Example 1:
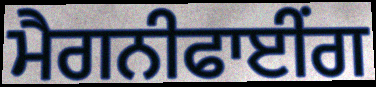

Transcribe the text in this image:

ਮੈਗਨੀਫਾਈਂਗ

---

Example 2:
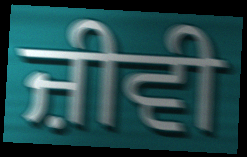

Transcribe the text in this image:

ਜ਼ੀਵੀ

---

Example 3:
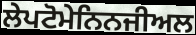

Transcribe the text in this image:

ਲੇਪਟੋਮੇਨਿਨਜੀਅਲ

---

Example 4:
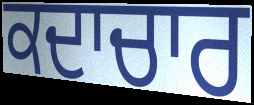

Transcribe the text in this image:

ਕਦਾਚਾਰ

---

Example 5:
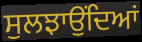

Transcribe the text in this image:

ਸੁਲਝਾਉਂਦਿਆਂ